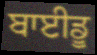
ਬਾਈਡੂ